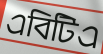
এবিটিএ